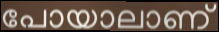
പോയാലാണ്